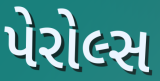
પેરોલ્સ